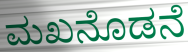
ಮಖನೊಡನೆ